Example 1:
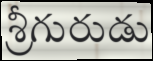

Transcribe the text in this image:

శ్రీగురుడు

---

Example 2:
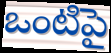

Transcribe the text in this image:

ఒంటిపై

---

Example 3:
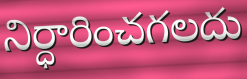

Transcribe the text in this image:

నిర్ధారించగలదు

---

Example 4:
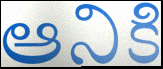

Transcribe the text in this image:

ఆనికి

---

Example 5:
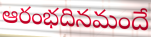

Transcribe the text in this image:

ఆరంభదినమందే